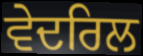
ਵੇਦਰਿਲ